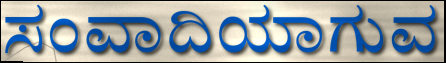
ಸಂವಾದಿಯಾಗುವ